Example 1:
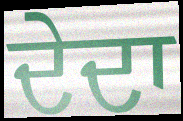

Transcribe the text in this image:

ਦੇਦਾ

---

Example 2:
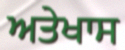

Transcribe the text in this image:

ਅਤੇਖਾਸ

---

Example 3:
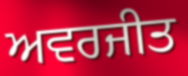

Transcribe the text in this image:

ਅਵਰਜੀਤ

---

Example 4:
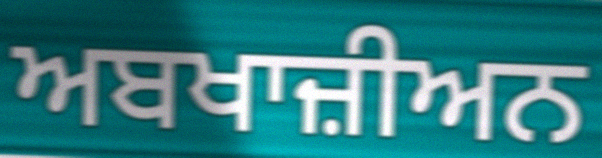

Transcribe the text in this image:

ਅਬਖਾਜ਼ੀਅਨ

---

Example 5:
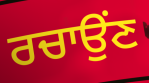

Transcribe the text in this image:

ਰਚਾਉਂਣ